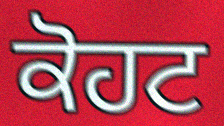
ਕੋਹਟ